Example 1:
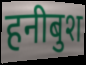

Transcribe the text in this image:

हनीबुश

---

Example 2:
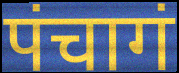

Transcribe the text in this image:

पंचागं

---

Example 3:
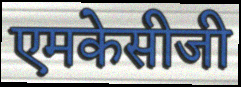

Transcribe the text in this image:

एमकेसीजी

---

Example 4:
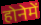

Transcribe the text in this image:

होनेमें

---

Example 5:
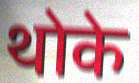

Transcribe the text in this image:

थोके